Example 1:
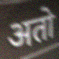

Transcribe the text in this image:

अतो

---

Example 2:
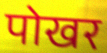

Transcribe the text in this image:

पोखर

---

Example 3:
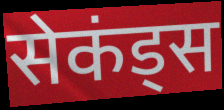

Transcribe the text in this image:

सेकंड्स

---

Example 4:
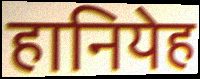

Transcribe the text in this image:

हानियेह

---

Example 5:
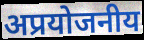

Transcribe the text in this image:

अप्रयोजनीय